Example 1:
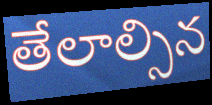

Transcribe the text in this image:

తేలాల్సిన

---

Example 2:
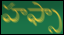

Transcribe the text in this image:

హఫ్సా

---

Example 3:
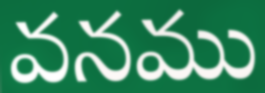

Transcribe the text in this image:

వనము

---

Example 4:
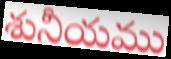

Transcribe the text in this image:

శునీయము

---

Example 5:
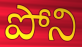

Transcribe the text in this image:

పోని